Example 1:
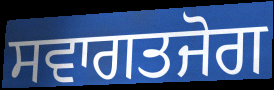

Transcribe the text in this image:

ਸਵਾਗਤਜੋਗ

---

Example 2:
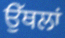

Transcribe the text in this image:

ਉੱਥਲਾਂ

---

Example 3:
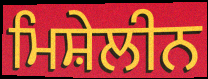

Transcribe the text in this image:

ਮਿਸ਼ੇਲੀਨ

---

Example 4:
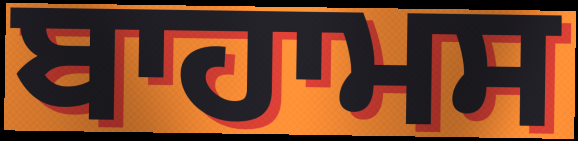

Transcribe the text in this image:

ਬਾਹਾਮਸ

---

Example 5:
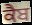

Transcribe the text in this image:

ਕੈਬ